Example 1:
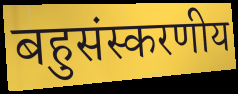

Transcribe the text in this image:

बहुसंस्करणीय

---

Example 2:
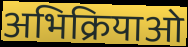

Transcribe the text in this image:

अभिक्रियाओ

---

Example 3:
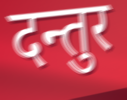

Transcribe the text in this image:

दन्तुर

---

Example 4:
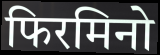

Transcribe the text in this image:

फिरमिनो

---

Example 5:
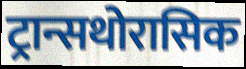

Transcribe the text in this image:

ट्रान्सथोरासिक